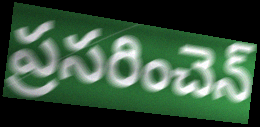
ప్రసరించెన్